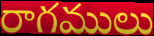
రాగములు